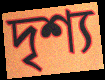
দৃশ্য